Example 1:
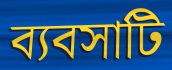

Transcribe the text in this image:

ব্যবসাটি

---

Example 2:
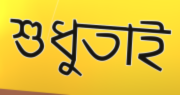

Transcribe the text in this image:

শুধুতাই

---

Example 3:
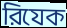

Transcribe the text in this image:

রিযেক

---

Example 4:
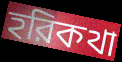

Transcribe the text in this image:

হরিকথা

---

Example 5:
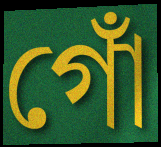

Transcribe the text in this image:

গোঁ